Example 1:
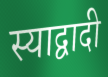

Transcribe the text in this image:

स्याद्वादी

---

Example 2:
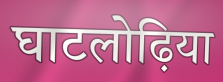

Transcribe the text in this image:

घाटलोढ़िया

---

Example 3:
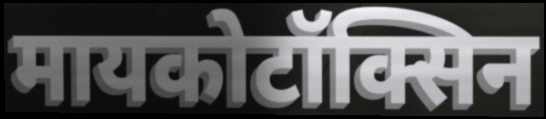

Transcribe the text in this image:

मायकोटॉक्सिन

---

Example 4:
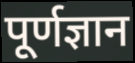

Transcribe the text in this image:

पूर्णज्ञान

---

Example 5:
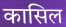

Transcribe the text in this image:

कासिल